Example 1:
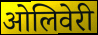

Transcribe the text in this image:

ओलिवेरी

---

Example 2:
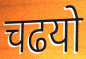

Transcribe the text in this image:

चढयो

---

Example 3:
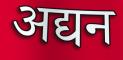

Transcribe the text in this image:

अद्यन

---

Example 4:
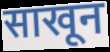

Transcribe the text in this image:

साखून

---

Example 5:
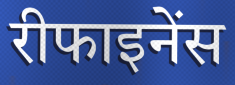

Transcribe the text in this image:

रीफाइनेंस